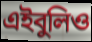
এইবুলিও